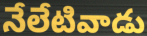
నేలేటివాడు